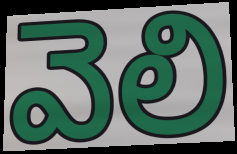
వెలి